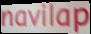
navilap